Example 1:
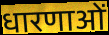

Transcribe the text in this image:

धारणाओं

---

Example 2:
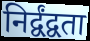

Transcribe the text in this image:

निर्द्वंद्वता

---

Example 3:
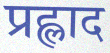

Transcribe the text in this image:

प्रह्लाद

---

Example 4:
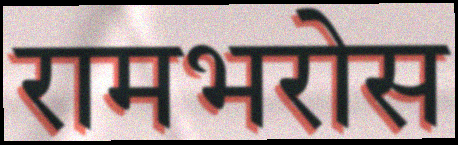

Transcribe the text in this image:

रामभरोस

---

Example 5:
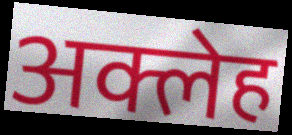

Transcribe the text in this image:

अक्लेह